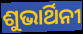
ଶୁଭାର୍ଥିନୀ